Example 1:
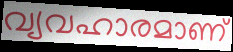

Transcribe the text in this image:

വ്യവഹാരമാണ്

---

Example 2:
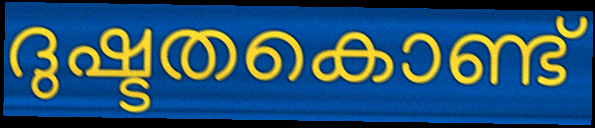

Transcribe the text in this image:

ദുഷ്ടതകൊണ്ട്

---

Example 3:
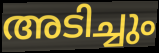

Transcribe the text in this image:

അടിച്ചും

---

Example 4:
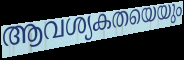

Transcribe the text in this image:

ആവശ്യകതയെയും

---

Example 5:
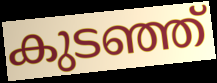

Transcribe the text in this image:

കുടഞ്ഞ്